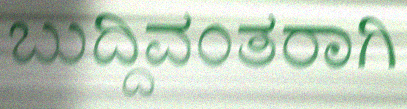
ಬುದ್ದಿವಂತರಾಗಿ